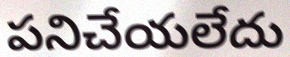
పనిచేయలేదు